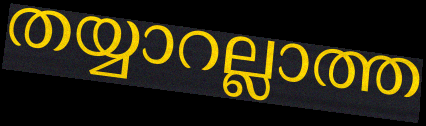
തയ്യാറല്ലാത്ത